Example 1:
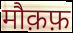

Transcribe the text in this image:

मौक़फ़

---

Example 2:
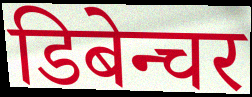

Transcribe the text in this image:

डिबेन्चर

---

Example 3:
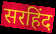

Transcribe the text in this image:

सरहिंद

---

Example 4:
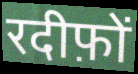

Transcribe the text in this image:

रदीफ़ों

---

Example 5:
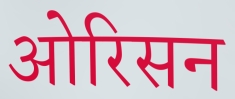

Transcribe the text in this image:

ओरिसन